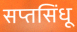
सप्तसिंधू